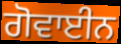
ਗੋਵਾਈਨ